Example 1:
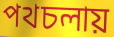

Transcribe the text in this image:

পথচলায়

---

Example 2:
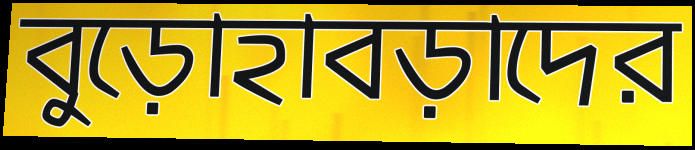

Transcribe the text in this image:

বুড়োহাবড়াদের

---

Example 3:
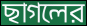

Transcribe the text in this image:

ছাগলের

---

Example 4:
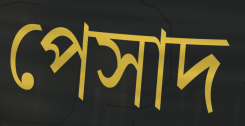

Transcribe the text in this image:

পেসাদ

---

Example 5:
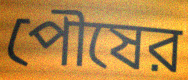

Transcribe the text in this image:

পৌষের